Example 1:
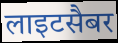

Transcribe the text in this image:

लाइटसैबर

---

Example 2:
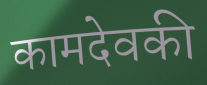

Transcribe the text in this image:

कामदेवकी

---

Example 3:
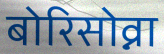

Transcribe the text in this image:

बोरिसोव्ना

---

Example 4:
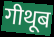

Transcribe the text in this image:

गीथूब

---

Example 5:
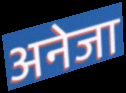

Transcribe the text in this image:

अनेजा